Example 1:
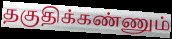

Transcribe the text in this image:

தகுதிக்கண்ணும்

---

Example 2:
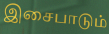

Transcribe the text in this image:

இசைபாடும்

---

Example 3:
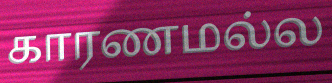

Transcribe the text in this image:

காரணமல்ல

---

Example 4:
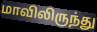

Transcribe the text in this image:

மாவிலிருந்து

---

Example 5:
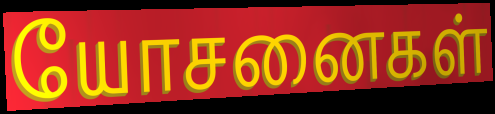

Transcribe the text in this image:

யோசனைகள்